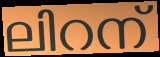
ലിറന്